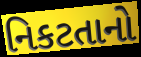
નિકટતાનો